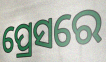
ପ୍ରେସରେ